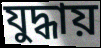
যুদ্ধায়